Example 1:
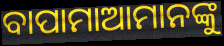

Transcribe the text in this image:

ବାପାମାଆମାନଙ୍କୁ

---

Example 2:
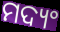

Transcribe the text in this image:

ମଦ୍ୟଂ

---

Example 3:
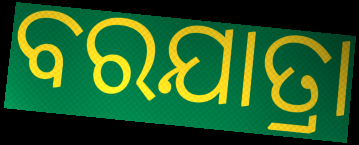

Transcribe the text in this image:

ବରଯାତ୍ରା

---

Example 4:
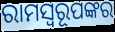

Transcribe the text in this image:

ରାମସ୍ୱରୂପଙ୍କର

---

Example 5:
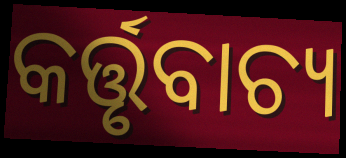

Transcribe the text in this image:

କର୍ତ୍ତୃବାଚ୍ୟ